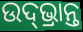
ଉଦ୍‌ଭ୍ରାନ୍ତ